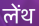
लेंथ